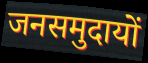
जनसमुदायों